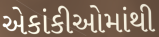
એકાંકીઓમાંથી